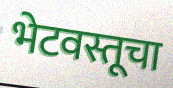
भेटवस्तूचा